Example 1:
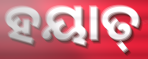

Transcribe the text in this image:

ହୟାତ୍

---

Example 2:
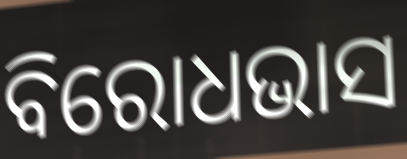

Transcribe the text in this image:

ବିରୋଧଭାସ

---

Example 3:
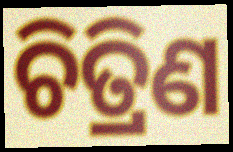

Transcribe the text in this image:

ଚିତ୍ରିଣ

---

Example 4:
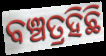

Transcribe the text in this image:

ବଞ୍ଚତ୍ରହିଛି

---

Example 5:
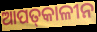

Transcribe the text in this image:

ଆପତ୍‌କାଳୀନ